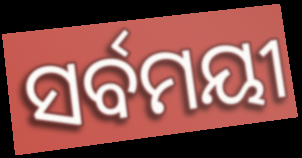
ସର୍ବମୟୀ